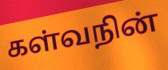
கள்வநின்